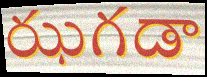
ఝగడా